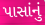
પાસાંનું